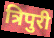
त्रिपुरी